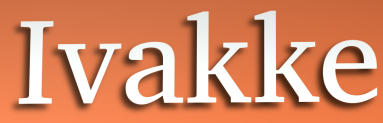
Ivakke